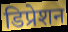
डिप्रेशन